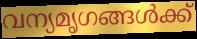
വന്യമൃഗങ്ങൾക്ക്